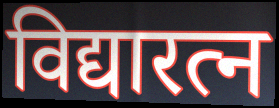
विद्यारत्न